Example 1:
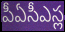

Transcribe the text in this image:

పీఏసీఎస్ల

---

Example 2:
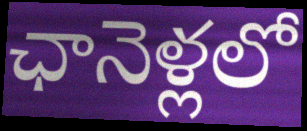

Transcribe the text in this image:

ఛానెళ్లలో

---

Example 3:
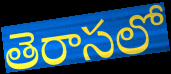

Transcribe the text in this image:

తెరాసలో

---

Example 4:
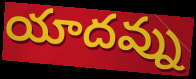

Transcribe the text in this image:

యాదవ్ను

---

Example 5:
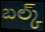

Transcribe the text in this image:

బల్క్